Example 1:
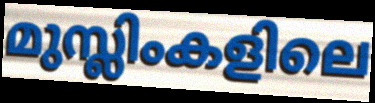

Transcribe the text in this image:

മുസ്ലിംകളിലെ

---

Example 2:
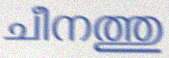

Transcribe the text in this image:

ചീനത്തു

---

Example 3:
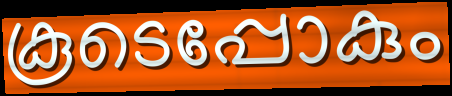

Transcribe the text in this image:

കൂടെപ്പോകും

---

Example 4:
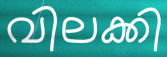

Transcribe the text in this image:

വിലക്കി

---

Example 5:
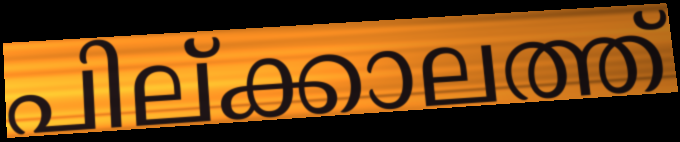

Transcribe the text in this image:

പില്ക്കാലത്ത്